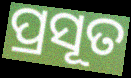
ପ୍ରସୂତ